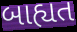
બાહ્યત